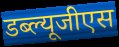
डब्ल्यूजीएस